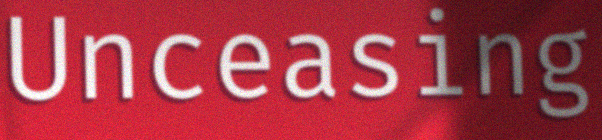
Unceasing